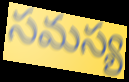
సమస్య